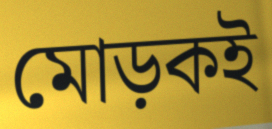
মোড়কই